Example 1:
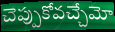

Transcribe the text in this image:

చెప్పుకోవచ్చేమో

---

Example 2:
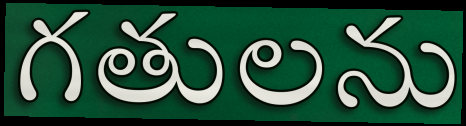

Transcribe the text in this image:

గతులను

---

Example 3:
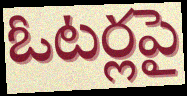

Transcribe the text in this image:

ఓటర్లపై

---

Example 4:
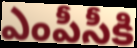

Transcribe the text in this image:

ఎంపీసీకి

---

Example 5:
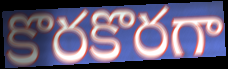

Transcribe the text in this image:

కొరకొరగా